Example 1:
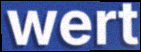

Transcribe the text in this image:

wert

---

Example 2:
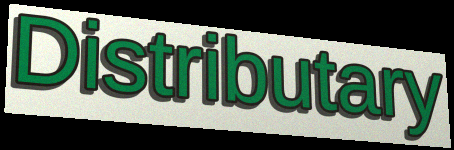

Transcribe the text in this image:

Distributary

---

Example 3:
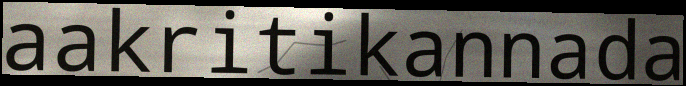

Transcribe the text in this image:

aakritikannada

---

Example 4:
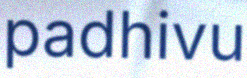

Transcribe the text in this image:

padhivu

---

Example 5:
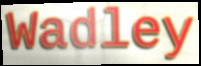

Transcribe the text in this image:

Wadley